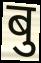
बु